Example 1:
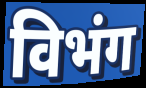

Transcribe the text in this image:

विभंग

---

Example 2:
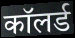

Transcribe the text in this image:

कॉलर्ड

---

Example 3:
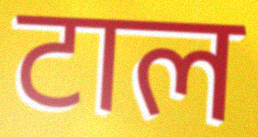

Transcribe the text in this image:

टाल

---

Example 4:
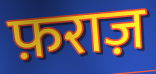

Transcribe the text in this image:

फ़राज़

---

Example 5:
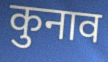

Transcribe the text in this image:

कुनाव